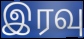
இரவு